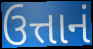
ઉત્તાનં